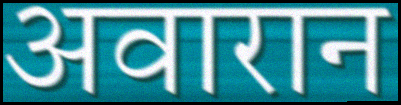
अवारान